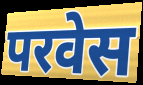
परवेस